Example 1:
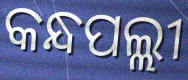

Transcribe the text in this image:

କନ୍ଧପଲ୍ଲୀ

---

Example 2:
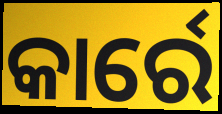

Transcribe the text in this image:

କାର୍ରେ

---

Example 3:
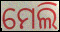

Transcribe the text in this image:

ମେଲି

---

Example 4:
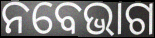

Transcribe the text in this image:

ନବେଭାଗ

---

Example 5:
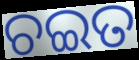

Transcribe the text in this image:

ଚଇତ